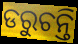
ଡରୁଚନ୍ତି